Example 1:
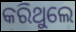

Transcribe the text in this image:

କରିଥୁଲେ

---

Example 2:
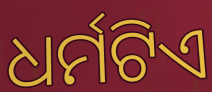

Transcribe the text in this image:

ଧର୍ମଟିଏ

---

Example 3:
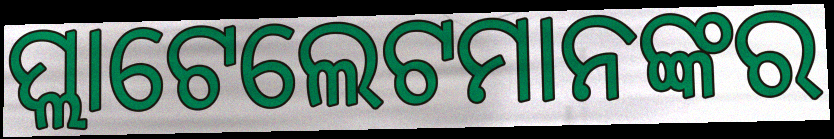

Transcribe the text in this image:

ପ୍ଲାଟେଲେଟମାନଙ୍କର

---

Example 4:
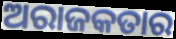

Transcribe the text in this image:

ଅରାଜକତାର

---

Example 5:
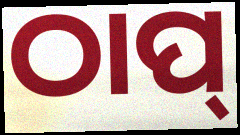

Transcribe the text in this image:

ଠାପ୍